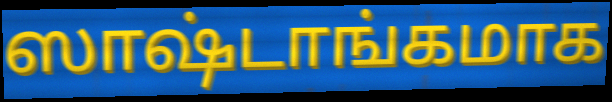
ஸாஷ்டாங்கமாக